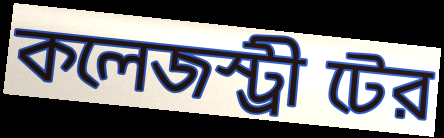
কলেজস্ট্রীটের